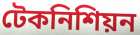
টেকনিশিয়ন